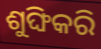
ଶୁଙ୍ଘିକରି